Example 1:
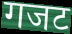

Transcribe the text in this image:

गजट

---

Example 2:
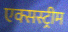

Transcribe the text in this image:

एक्सस्ट्रीम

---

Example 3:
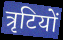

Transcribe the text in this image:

त्रृटियों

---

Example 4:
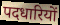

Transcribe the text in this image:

पदधारियों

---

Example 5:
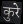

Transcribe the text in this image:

कुरे